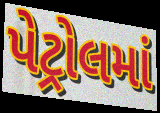
પેટ્રોલમાં